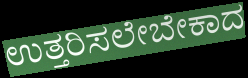
ಉತ್ತರಿಸಲೇಬೇಕಾದ